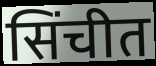
सिंचीत